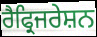
ਰੈਫ੍ਰਿਜਰੇਸ਼ਨ